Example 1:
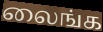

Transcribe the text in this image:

லைங்க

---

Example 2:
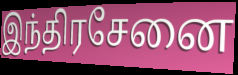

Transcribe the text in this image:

இந்திரசேனை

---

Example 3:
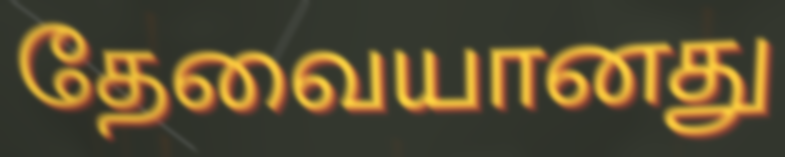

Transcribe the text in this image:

தேவையானது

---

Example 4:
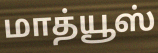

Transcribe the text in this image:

மாத்யூஸ்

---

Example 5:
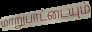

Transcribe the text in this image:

மாறுபாட்டையும்